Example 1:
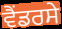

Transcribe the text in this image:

ਵੈਂਡਰਸੇ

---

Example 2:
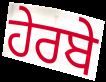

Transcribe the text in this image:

ਹੇਰਬੇ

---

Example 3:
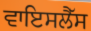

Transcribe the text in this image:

ਵਾਇਸਲੈੱਸ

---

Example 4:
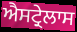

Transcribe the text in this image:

ਐਸਟ੍ਰੇਲਾਸ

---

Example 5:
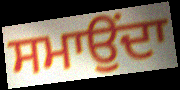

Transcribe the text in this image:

ਸਮਾਉਂਦਾ